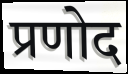
प्रणोद